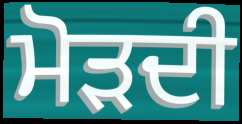
ਮੋੜਦੀ